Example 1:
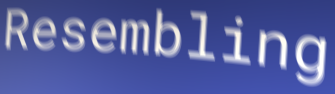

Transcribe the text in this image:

Resembling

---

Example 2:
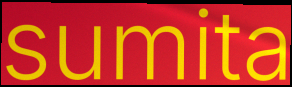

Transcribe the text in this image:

sumita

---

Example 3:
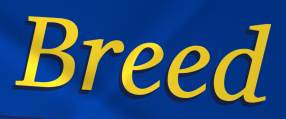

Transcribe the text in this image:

Breed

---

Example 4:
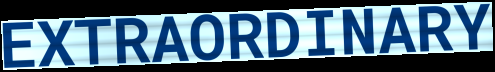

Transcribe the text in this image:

EXTRAORDINARY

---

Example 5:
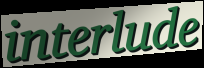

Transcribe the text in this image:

interlude